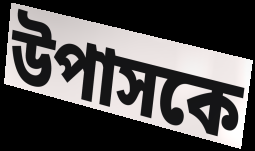
উপাসকে